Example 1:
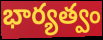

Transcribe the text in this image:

భార్యత్వం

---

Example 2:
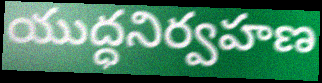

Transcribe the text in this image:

యుద్ధనిర్వహణ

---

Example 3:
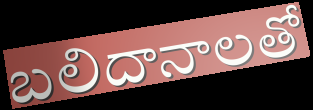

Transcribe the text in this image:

బలిదానాలతో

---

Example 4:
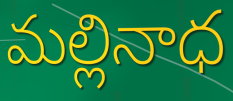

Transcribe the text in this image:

మల్లినాధ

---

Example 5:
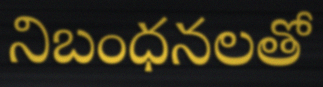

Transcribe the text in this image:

నిబంధనలతో